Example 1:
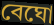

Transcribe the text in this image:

বেঘো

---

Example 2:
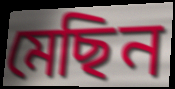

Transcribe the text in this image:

মেছিন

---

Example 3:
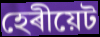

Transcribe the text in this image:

হেৰীয়েট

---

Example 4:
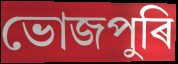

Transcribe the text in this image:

ভোজপুৰি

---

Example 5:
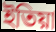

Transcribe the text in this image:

ইতিয়া